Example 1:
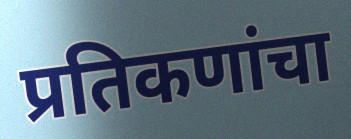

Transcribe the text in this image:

प्रतिकणांचा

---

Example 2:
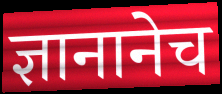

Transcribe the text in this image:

ज्ञानानेच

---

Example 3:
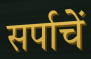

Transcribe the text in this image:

सर्पाचें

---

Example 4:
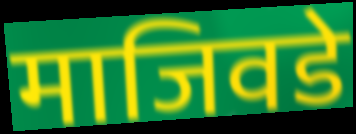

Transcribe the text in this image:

माजिवडे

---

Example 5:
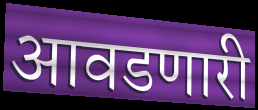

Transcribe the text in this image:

आवडणारी